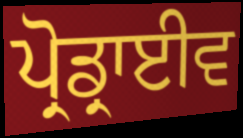
ਪ੍ਰੋਡ੍ਰਾਈਵ